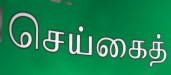
செய்கைத்